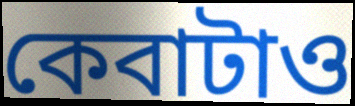
কেবাটাও